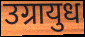
उग्रायुध